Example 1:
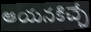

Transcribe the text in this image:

ఆయనకిచ్చే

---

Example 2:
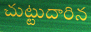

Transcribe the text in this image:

చుట్టుదారిన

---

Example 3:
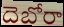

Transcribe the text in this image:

దెబోరా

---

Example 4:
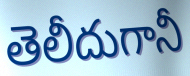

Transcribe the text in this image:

తెలీదుగానీ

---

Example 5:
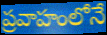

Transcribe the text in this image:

ప్రవాహంలోనే